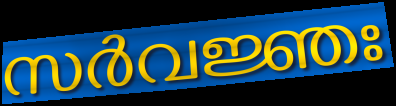
സർവജ്ഞഃ